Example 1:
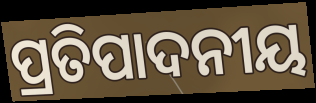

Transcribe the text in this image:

ପ୍ରତିପାଦନୀୟ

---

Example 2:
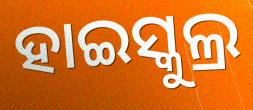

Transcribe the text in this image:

ହାଇସ୍କୁଲ୍ର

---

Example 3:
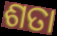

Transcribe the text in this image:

ଶତା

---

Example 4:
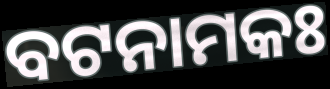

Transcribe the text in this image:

ବଟନାମକଃ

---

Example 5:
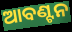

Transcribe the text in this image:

ଆବଣ୍ଟନ